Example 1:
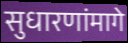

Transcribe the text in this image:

सुधारणांमागे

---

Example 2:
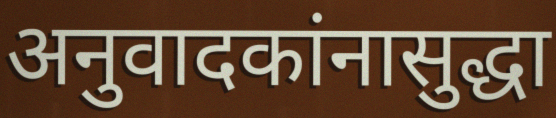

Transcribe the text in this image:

अनुवादकांनासुद्धा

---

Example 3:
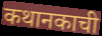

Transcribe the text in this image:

कथानकाची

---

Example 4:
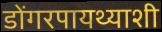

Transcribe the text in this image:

डोंगरपायथ्याशी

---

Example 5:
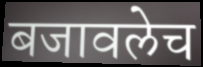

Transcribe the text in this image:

बजावलेच